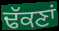
ਢੱਕਣਾਂ